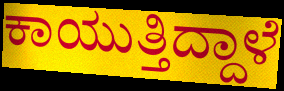
ಕಾಯುತ್ತಿದ್ದಾಳೆ